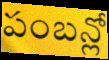
పంబన్లో